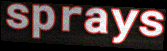
sprays